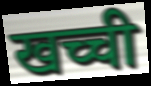
खच्ची